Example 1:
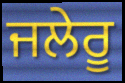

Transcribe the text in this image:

ਜਲੇਰੂ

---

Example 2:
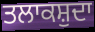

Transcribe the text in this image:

ਤਲਾਕਸ਼ੁਦਾ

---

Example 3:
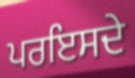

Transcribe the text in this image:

ਪਰਇਸਦੇ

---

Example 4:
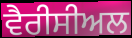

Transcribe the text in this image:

ਵੈਰੀਸੀਅਲ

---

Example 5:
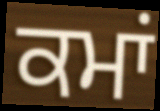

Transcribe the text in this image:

ਕਮਾਂ